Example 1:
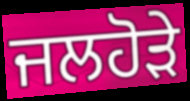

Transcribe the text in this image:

ਜਲਹੋੜੇ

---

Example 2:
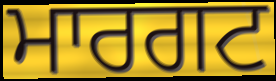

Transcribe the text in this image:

ਮਾਰਗਟ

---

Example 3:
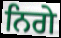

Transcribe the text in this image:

ਨਿਗੇ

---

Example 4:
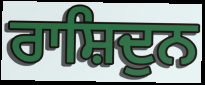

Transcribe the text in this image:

ਰਾਸ਼ਿਦੁਨ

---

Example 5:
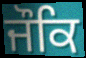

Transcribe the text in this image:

ਜੌਕਿ